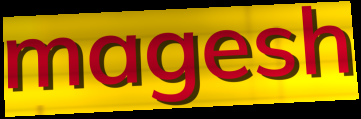
magesh